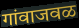
गांवाजवळ